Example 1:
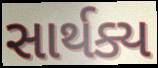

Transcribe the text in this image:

સાર્થક્ય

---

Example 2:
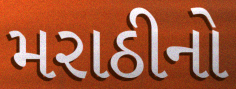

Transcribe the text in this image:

મરાઠીનો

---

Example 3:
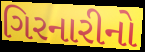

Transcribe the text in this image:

ગિરનારીનો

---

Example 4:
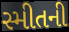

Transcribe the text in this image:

સ્મીતની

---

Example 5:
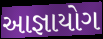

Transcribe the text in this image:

આજ્ઞાયોગ